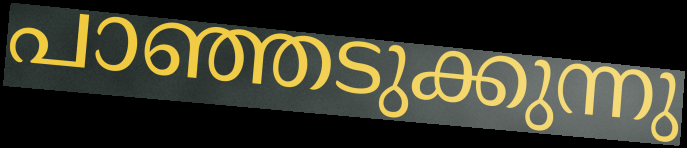
പാഞ്ഞടുക്കുന്നു